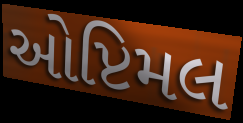
ઓપ્ટિમલ